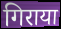
गिराया